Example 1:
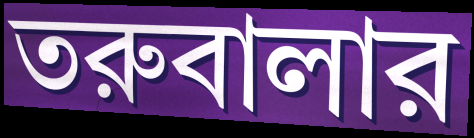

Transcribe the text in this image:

তরুবালার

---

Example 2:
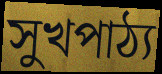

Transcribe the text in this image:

সুখপাঠ্য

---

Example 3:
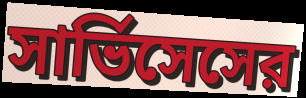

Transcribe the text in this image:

সার্ভিসেসের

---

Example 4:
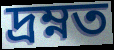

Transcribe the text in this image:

দ্রম্নত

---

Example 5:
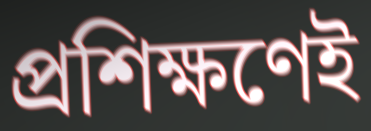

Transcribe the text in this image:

প্রশিক্ষণেই